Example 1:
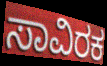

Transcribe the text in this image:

ಸಾವಿರಕ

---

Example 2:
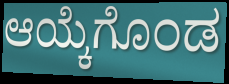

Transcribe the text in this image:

ಆಯ್ಕೆಗೊಂಡ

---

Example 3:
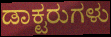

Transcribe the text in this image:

ಡಾಕ್ಟರುಗಳು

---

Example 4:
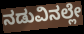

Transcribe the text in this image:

ನಡುವಿನಲ್ಲೇ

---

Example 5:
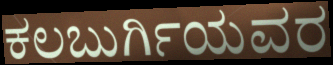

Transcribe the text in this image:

ಕಲಬುರ್ಗಿಯವರ